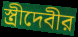
স্ত্রীদেবীর